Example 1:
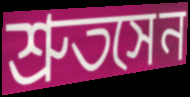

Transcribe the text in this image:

শ্রুতসেন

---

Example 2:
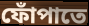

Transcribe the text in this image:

ফোঁপাতে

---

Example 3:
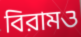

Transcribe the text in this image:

বিরামও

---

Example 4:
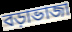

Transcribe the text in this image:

বড়াভাজা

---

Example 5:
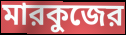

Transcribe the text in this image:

মারকুজের